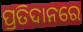
ପ୍ରତିଦାନରେ